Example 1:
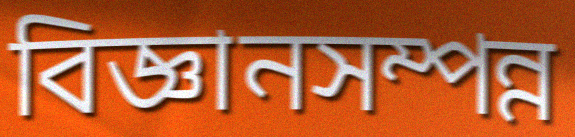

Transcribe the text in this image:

বিজ্ঞানসম্পন্ন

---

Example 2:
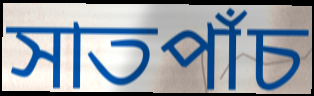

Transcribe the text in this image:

সাতপাঁচ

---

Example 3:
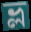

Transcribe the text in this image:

ভ্ল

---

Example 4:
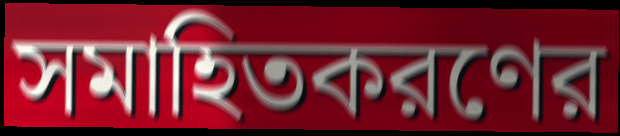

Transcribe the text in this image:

সমাহিতকরণের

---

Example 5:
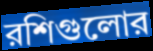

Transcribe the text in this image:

রশিগুলোর